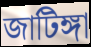
জাটিঙ্গা